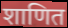
शाणित